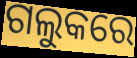
ଗଲୁକରେ